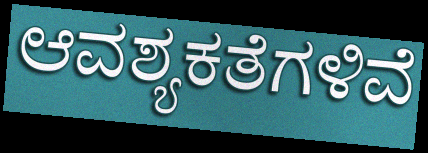
ಆವಶ್ಯಕತೆಗಳಿವೆ